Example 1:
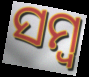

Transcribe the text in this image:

ସମ୍ବ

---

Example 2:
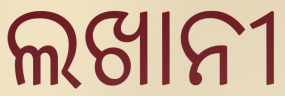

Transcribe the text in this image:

ଲଖାନୀ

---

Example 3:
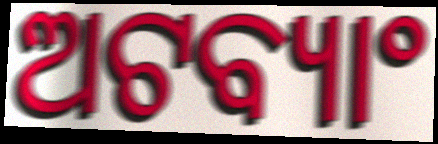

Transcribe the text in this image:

ଅଟବ୍ୟାଂ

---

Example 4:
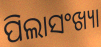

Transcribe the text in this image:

ପିଲାସଂଖ୍ୟା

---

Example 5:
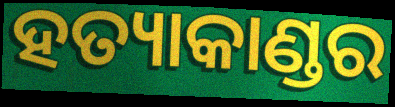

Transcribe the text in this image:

ହତ୍ୟାକାଣ୍ଡର